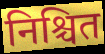
निश्चित